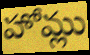
హోమ్లు